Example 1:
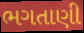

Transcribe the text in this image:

ભગતાણી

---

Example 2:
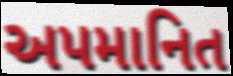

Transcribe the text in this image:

અપમાનિત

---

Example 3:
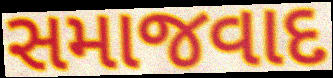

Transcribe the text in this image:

સમાજવાદ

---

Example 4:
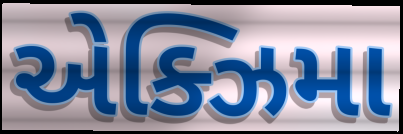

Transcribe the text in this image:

એક્ઝિમા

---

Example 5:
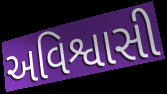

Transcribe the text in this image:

અવિશ્વાસી